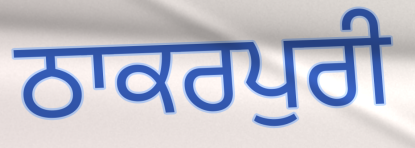
ਠਾਕਰਪੁਰੀ